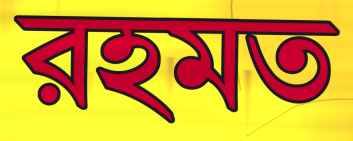
রহমত